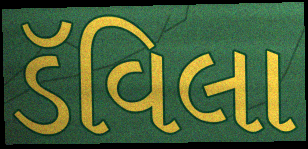
ડૅવિલા